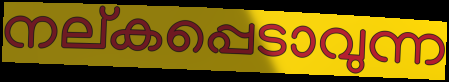
നല്കപ്പെടാവുന്ന